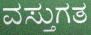
ವಸ್ತುಗತ